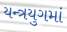
યન્ત્રયુગમાં